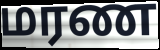
மரண